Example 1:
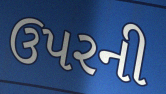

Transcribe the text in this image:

ઉપરની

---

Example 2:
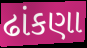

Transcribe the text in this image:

ઢાંકણા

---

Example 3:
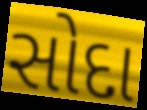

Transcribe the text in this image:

સોદા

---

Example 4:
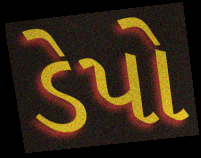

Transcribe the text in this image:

ડેપો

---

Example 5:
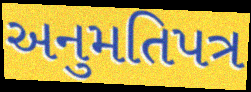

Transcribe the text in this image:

અનુમતિપત્ર